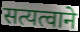
सत्यत्वाने